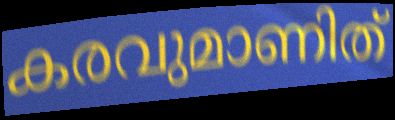
കരവുമാണിത്